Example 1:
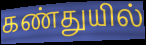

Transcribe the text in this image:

கண்துயில்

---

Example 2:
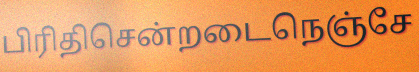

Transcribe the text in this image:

பிரிதிசென்றடைநெஞ்சே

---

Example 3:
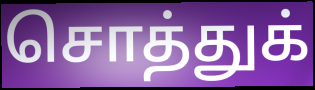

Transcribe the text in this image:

சொத்துக்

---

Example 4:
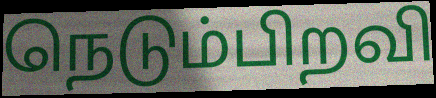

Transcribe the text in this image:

நெடும்பிறவி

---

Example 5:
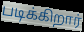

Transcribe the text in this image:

படிக்கிறார்